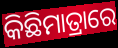
କିଛିମାତ୍ରାରେ